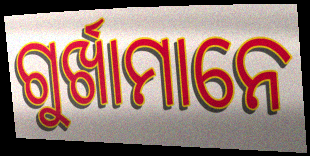
ଗୁର୍ଖାମାନେ